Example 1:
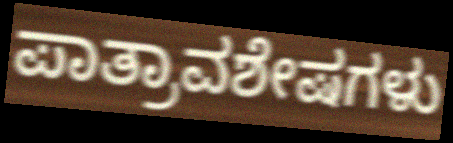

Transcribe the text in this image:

ಪಾತ್ರಾವಶೇಷಗಳು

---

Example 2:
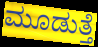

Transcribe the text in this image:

ಮೂಡುತ್ತೆ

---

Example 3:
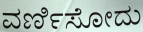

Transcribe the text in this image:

ವರ್ಣಿಸೋದು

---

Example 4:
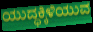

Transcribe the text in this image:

ಯುದ್ಧಕ್ಕಿಳಿಯುವ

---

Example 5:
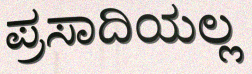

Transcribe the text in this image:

ಪ್ರಸಾದಿಯಲ್ಲ